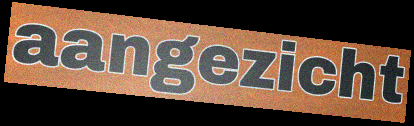
aangezicht